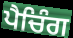
ਪੈਚਿੰਗ